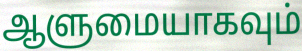
ஆளுமையாகவும்